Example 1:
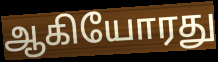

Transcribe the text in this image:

ஆகியோரது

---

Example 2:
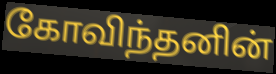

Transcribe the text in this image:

கோவிந்தனின்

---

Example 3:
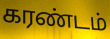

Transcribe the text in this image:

கரண்டம்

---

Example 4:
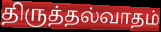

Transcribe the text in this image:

திருத்தல்வாதம்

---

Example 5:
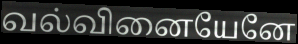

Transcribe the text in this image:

வல்வினையேனே